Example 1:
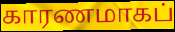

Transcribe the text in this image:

காரணமாகப்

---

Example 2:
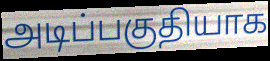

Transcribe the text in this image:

அடிப்பகுதியாக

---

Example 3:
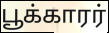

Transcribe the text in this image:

பூக்காரர்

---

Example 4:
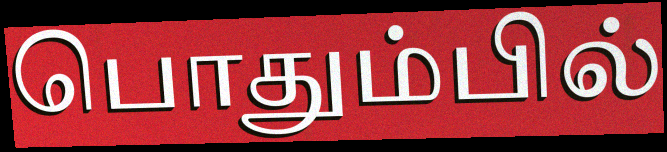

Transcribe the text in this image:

பொதும்பில்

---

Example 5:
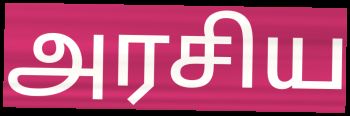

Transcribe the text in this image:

அரசிய